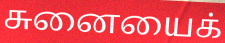
சுனையைக்